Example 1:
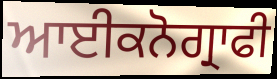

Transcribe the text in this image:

ਆਈਕਨੋਗ੍ਰਾਫੀ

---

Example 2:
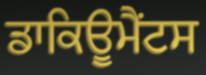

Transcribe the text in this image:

ਡਾਕਿਊਮੈਂਟਸ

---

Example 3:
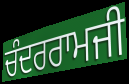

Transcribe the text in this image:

ਚੰਦਰਰਾਮਜੀ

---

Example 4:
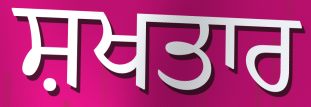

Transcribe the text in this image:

ਸ਼ਖਤਾਰ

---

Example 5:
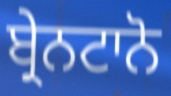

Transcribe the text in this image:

ਬ੍ਰੇਨਟਾਨੋ